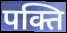
पक्ति